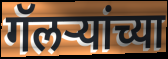
गॅलर्‍यांच्या